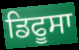
ਡਿਫੂਸਾ